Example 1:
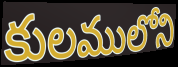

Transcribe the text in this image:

కులములోని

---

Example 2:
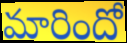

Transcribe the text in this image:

మారిందో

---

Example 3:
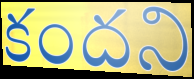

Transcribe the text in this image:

కందని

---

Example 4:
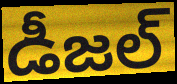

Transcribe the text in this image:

డీజల్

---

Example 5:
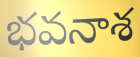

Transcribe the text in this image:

భవనాశ